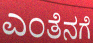
ಎಂತೆನಗೆ